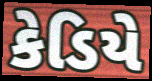
કેડિયે